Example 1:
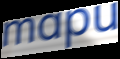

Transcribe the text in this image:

mapu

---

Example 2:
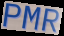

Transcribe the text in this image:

PMR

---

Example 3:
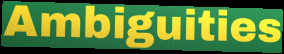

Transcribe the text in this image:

Ambiguities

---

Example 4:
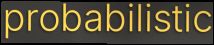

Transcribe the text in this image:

probabilistic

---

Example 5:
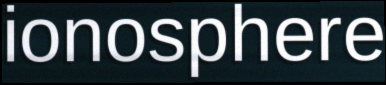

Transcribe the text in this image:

ionosphere